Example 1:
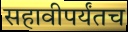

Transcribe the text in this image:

सहावीपर्यंतच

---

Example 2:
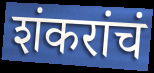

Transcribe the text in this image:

शंकरांचं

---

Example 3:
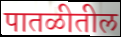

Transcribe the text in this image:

पातळीतील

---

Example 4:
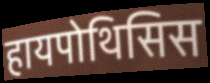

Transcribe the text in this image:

हायपोथिसिस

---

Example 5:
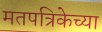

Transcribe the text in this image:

मतपत्रिकेच्या